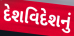
દેશવિદેશનું